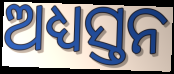
ଅଧ୍ୟସ୍ତନ